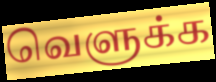
வெளுக்க